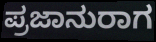
ಪ್ರಜಾನುರಾಗ